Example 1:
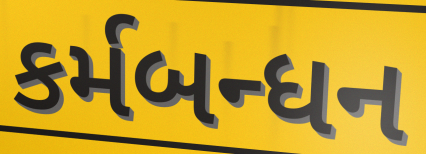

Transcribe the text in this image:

કર્મબન્ધન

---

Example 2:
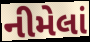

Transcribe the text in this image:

નીમેલાં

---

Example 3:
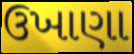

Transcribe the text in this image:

ઉખાણા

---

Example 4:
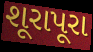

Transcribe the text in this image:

શૂરાપૂરા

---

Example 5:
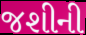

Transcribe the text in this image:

જશીની